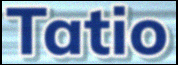
Tatio